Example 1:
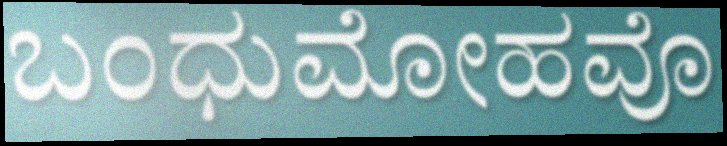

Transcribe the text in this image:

ಬಂಧುಮೋಹವೊ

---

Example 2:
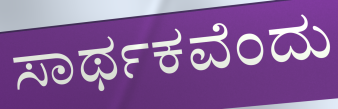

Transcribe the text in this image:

ಸಾರ್ಥಕವೆಂದು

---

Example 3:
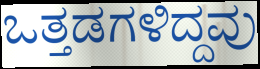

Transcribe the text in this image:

ಒತ್ತಡಗಳಿದ್ದವು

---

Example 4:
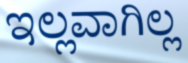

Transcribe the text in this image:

ಇಲ್ಲವಾಗಿಲ್ಲ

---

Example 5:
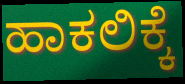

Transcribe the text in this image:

ಹಾಕಲಿಕ್ಕೆ